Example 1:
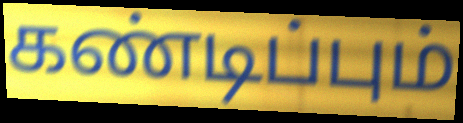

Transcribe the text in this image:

கண்டிப்பும்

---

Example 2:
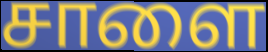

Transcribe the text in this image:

சாளை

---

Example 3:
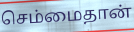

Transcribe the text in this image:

செம்மைதான்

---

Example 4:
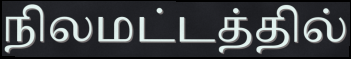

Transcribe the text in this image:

நிலமட்டத்தில்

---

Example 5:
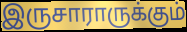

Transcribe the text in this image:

இருசாராருக்கும்